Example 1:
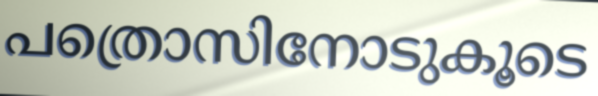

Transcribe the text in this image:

പത്രൊസിനോടുകൂടെ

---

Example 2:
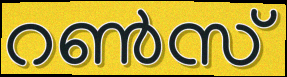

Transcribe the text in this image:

റൺസ്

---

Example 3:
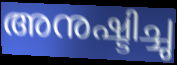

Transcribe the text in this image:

അനുഷ്ടിച്ചു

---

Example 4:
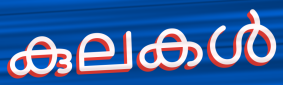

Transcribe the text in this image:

കുലകൾ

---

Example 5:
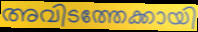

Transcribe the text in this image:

അവിടത്തേക്കായി